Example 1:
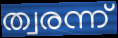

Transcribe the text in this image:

ത്വരന്ന്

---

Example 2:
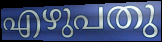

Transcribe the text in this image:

എഴുപതു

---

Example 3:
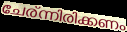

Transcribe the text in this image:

ചേര്ന്നിരിക്കണം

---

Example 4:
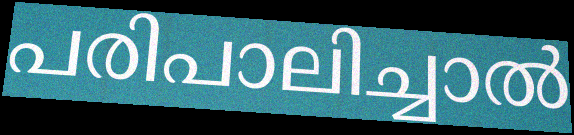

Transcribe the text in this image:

പരിപാലിച്ചാൽ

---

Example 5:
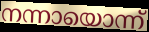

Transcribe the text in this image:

നന്നായൊന്ന്